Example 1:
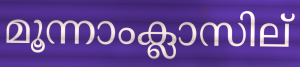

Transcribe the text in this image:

മൂന്നാംക്ലാസില്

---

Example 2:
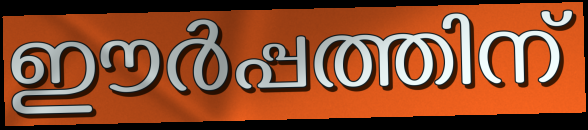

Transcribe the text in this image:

ഈർപ്പത്തിന്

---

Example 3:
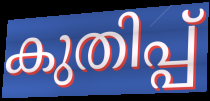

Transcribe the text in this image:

കുതിപ്പ്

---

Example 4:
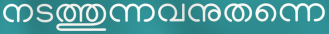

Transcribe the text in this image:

നടത്തുന്നവനുതന്നെ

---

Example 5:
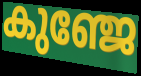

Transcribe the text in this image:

കുഞ്ജേ